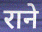
राने